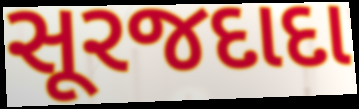
સૂરજદાદા